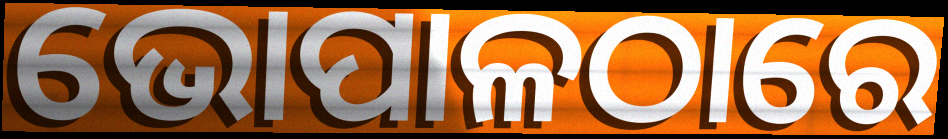
ଭୋପାଳଠାରେ